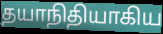
தயாநிதியாகிய